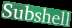
Subshell